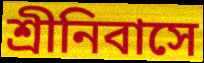
শ্ৰীনিবাসে